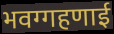
भवग्गहणाई